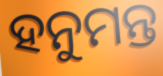
ହନୁମନ୍ତ